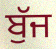
ਬੁੱਜ